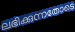
ലഭിക്കുന്നതോടെ